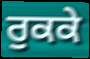
ਰੁਕਕੇ